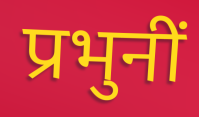
प्रभुनीं